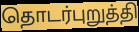
தொடர்புறுத்தி